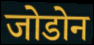
जोडोन